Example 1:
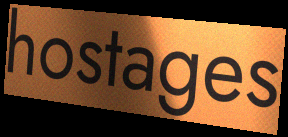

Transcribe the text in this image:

hostages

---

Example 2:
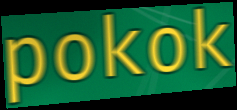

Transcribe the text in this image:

pokok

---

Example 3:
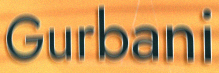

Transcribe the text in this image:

Gurbani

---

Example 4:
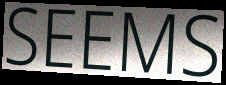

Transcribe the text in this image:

SEEMS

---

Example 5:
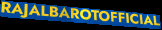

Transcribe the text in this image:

RAJALBAROTOFFICIAL